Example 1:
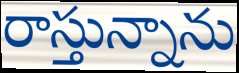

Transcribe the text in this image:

రాస్తున్నాను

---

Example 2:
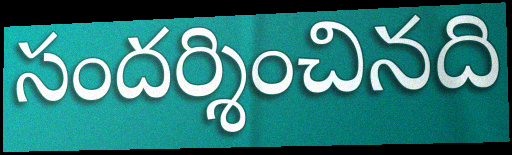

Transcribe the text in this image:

సందర్శించినది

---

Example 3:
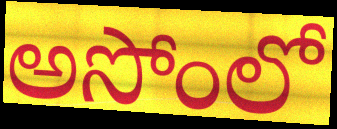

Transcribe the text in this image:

అసోంలో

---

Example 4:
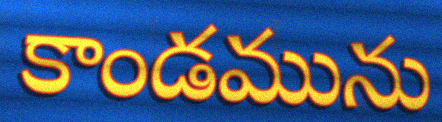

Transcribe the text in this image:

కాండమును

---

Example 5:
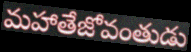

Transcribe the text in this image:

మహాతేజోవంతుడు